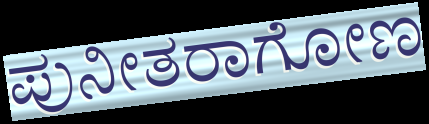
ಪುನೀತರಾಗೋಣ